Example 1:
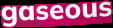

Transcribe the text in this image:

gaseous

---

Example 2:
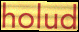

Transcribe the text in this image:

holud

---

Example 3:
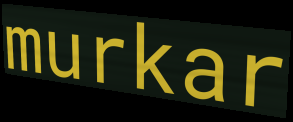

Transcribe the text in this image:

murkar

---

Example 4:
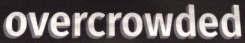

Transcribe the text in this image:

overcrowded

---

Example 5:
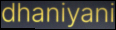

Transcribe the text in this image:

dhaniyani